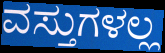
ವಸ್ತುಗಳಲ್ಲ